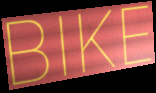
BIKE